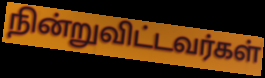
நின்றுவிட்டவர்கள்